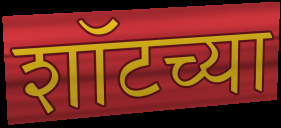
शॉटच्या